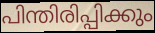
പിന്തിരിപ്പിക്കും